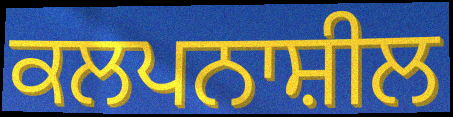
ਕਲਪਨਾਸ਼ੀਲ